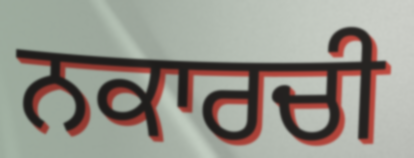
ਨਕਾਰਚੀ